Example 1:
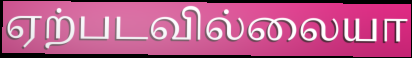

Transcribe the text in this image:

ஏற்படவில்லையா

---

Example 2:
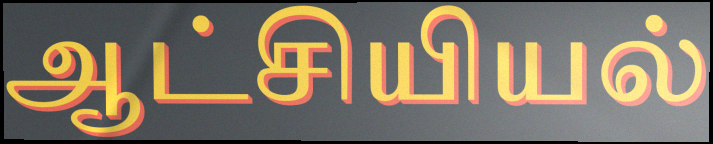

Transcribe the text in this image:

ஆட்சியியல்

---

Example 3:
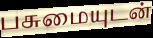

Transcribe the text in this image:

பசுமையுடன்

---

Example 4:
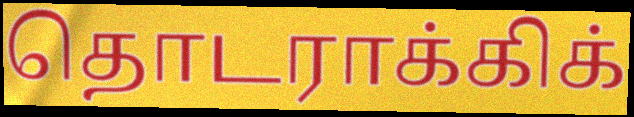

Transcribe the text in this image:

தொடராக்கிக்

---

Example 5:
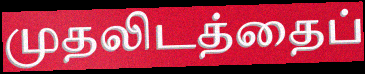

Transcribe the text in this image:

முதலிடத்தைப்